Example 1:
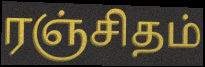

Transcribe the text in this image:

ரஞ்சிதம்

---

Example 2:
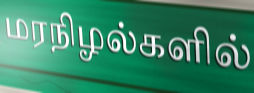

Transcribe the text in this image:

மரநிழல்களில்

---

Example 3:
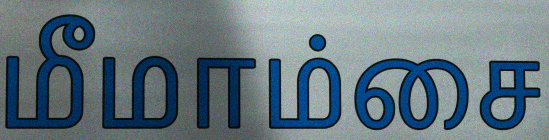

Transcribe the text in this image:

மீமாம்சை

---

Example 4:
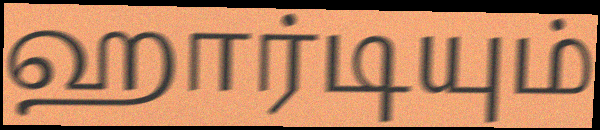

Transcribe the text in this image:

ஹார்டியும்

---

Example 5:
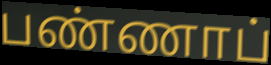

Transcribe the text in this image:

பண்ணாப்